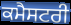
ਕਮੈਸਟਰੀ